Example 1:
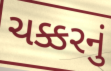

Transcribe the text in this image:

ચક્કરનું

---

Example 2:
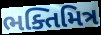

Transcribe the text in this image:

ભક્તિમિત્ર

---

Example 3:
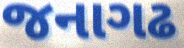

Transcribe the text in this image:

જનાગઢ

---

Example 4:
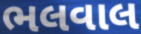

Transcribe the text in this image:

ભલવાલ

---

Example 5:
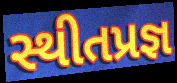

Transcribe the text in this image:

સ્થીતપ્રજ્ઞ